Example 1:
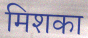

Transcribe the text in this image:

मिशका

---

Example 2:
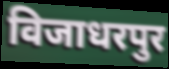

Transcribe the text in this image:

विजाधरपुर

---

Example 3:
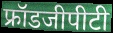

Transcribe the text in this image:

फ्रॉडजीपीटी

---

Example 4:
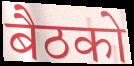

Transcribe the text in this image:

बैठको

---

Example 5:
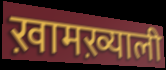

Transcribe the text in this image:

ख़ामख़्याली